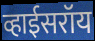
व्हाईसरॉय